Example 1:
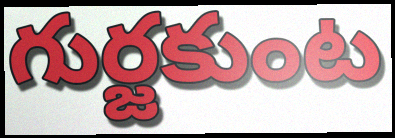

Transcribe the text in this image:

గుర్జకుంట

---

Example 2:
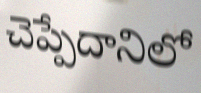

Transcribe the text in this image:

చెప్పేదానిలో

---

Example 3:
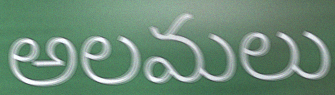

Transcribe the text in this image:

అలమలు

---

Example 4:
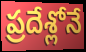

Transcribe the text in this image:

ప్రదేశ్లోనే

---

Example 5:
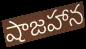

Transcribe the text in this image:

షాజహాన